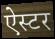
ऐस्टर